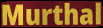
Murthal